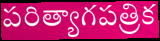
పరిత్యాగపత్రిక